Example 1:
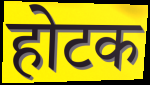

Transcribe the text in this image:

होटक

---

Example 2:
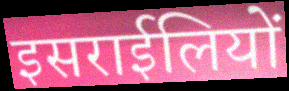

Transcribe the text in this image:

इसराईलियों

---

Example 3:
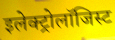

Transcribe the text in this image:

इलेक्ट्रोलॉजिस्ट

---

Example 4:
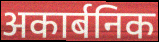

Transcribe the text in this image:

अकार्बनिक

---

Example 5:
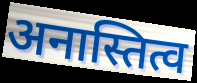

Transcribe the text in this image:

अनास्तित्व